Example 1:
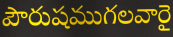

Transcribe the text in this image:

పౌరుషముగలవారై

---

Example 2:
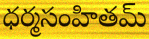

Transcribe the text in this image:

ధర్మసంహితమ్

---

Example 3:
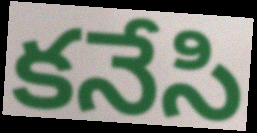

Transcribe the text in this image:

కనేసి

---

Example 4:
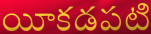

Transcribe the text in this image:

యీకడపటి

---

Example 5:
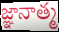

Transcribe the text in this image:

జ్ఞానాత్మ